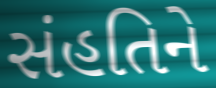
સંહતિને